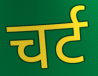
चर्ट